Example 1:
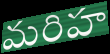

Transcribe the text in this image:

మరిహ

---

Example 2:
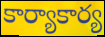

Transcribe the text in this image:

కార్యాకార్య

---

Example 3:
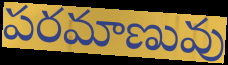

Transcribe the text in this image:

పరమాణువు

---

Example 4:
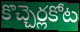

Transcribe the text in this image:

కొచ్చెర్లకోట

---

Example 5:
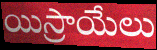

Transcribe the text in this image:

యిస్రాయేలు